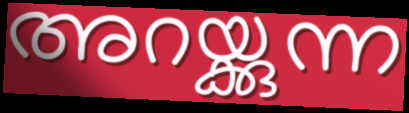
അറയ്ക്കുന്ന